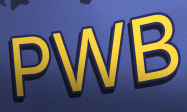
PWB